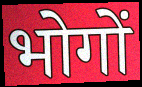
भोगों